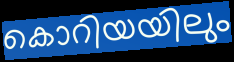
കൊറിയയിലും